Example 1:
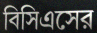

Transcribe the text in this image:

বিসিএসের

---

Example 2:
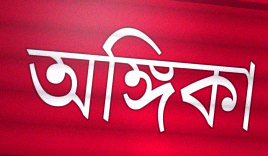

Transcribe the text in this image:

অঙ্গিকা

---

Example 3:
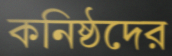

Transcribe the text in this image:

কনিষ্ঠদের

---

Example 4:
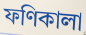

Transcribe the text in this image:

ফণিকালা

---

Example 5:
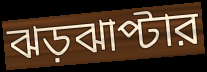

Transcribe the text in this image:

ঝড়ঝাপ্টার